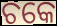
ଚକେ